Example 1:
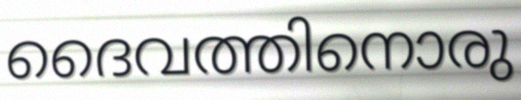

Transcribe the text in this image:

ദൈവത്തിനൊരു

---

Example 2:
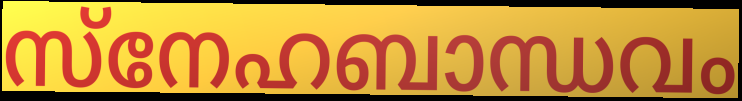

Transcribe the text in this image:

സ്നേഹബാന്ധവം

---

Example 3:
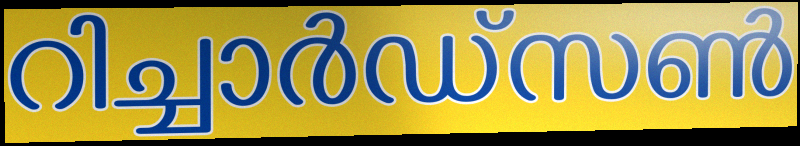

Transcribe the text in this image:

റിച്ചാർഡ്സൺ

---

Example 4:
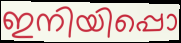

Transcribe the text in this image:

ഇനിയിപ്പൊ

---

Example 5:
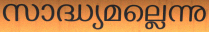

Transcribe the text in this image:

സാദ്ധ്യമല്ലെന്നു